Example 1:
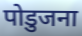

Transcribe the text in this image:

पोडुजना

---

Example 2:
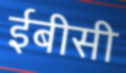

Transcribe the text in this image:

ईबीसी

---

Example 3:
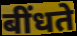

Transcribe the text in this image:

बींधते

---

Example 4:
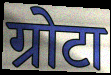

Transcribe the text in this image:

ग्रोटा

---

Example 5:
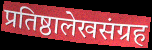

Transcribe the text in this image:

प्रतिष्ठालेखसंग्रह